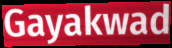
Gayakwad